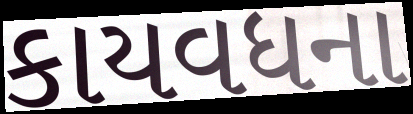
કાયવધના